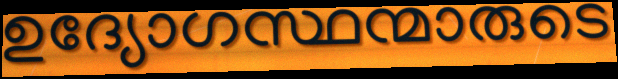
ഉദ്യോഗസ്ഥന്മാരുടെ